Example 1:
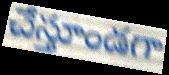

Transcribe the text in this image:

చేస్తూండగా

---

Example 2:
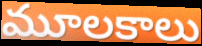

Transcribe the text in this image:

మూలకాలు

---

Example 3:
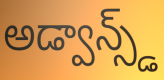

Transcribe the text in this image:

అడ్వాన్స్డ్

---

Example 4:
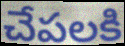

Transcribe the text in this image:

చేపలకి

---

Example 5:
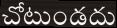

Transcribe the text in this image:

చోటుండదు